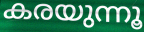
കരയുന്നൂ